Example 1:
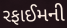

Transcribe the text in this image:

રફાઈમની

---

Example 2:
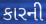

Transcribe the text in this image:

કારની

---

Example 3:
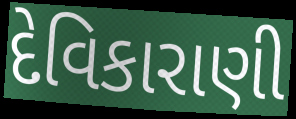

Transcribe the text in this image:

દેવિકારાણી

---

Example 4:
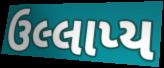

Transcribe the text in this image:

ઉલ્લાપ્ય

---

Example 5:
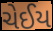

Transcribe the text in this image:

ચેઈય